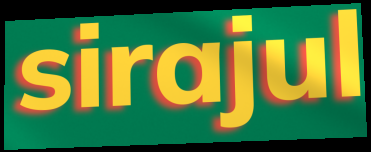
sirajul